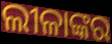
ଲୀଳାଙ୍କର